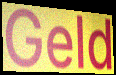
Geld